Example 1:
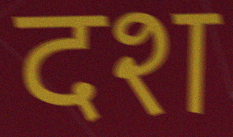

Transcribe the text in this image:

दश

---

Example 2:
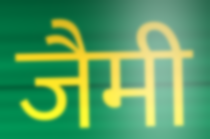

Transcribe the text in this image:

जैमी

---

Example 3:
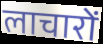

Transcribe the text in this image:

लाचारों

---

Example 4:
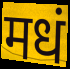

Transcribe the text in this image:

मधं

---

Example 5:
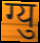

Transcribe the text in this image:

ग्यु